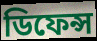
ডিফেন্স